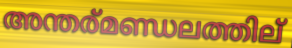
അന്തര്മണ്ഡലത്തില്